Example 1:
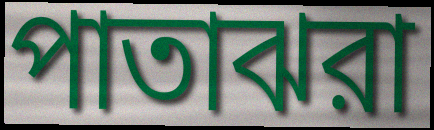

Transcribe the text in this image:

পাতাঝরা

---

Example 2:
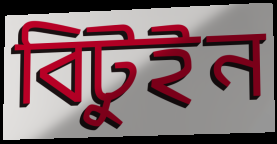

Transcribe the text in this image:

বিটুইন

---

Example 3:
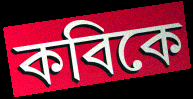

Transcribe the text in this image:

কবিকে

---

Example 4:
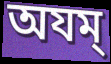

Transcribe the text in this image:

অযম্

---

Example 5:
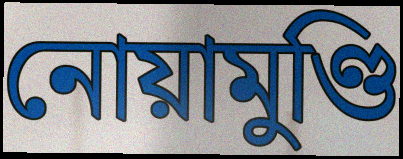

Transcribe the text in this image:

নোয়ামুণ্ডি